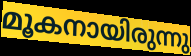
മൂകനായിരുന്നു